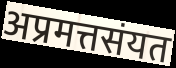
अप्रमत्तसंयत